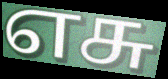
எசு